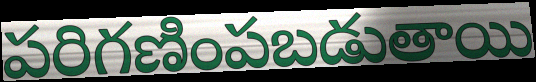
పరిగణింపబడుతాయి